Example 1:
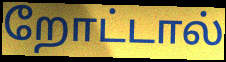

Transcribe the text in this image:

றோட்டால்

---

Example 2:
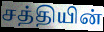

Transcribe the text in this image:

சத்தியின்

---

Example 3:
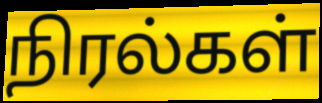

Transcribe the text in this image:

நிரல்கள்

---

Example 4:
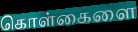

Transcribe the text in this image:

கொள்கைளை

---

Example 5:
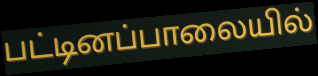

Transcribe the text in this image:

பட்டினப்பாலையில்